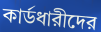
কার্ডধারীদের